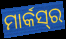
ମାର୍କସ୍‍ର